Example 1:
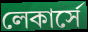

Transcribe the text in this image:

লেকার্সে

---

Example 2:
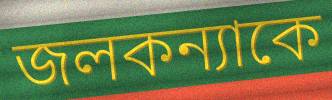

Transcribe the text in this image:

জলকন্যাকে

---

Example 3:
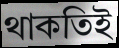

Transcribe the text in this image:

থাকতিই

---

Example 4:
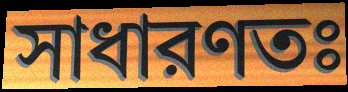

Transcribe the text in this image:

সাধারণতঃ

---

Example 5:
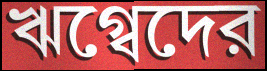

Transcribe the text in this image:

ঋগ্বেদের